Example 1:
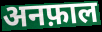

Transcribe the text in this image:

अनफ़ाल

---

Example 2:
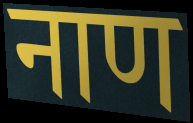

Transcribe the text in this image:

नाण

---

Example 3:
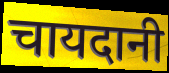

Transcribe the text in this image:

चायदानी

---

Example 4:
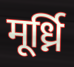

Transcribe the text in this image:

मूर्ध्नि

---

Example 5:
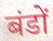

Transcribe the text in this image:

बंडों